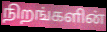
நிறங்களின்